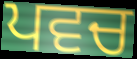
ਪਵਚ